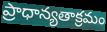
ప్రాధాన్యతాక్రమం